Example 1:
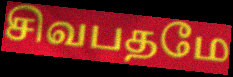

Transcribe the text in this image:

சிவபதமே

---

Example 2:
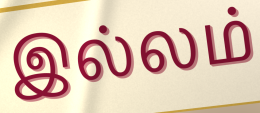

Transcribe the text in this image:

இல்லம்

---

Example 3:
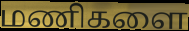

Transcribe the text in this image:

மணிகளை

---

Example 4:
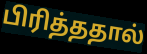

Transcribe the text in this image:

பிரித்ததால்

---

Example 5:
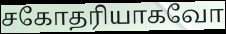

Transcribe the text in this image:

சகோதரியாகவோ